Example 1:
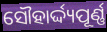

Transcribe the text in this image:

ସୌହାର୍ଦ୍ଦ୍ୟପୂର୍ଣ୍ଣ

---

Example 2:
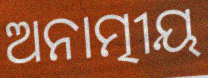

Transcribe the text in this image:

ଅନାତ୍ମୀୟ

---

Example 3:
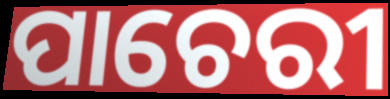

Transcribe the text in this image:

ପାଚେରୀ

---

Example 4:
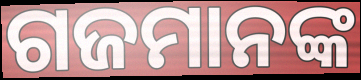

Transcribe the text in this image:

ଗଜମାନଙ୍କ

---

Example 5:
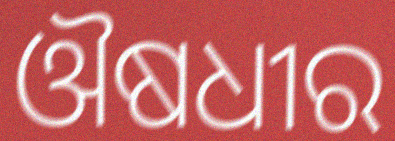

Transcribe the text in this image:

ଔଷଧୀର